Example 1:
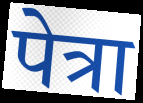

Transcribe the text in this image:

पेत्रा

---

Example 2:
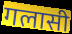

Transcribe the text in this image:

गलासी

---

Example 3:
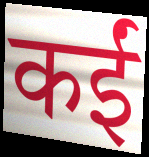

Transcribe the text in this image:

कईं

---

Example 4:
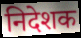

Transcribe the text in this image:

निदेशक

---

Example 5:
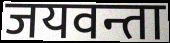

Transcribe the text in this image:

जयवन्ता